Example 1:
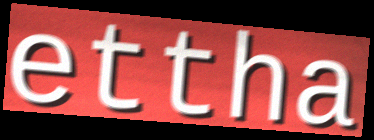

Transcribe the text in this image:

ettha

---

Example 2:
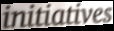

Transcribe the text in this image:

initiatives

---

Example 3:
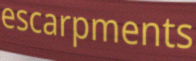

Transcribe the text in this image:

escarpments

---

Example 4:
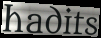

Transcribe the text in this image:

hadits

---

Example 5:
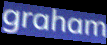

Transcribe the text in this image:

graham